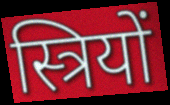
स्त्रियों